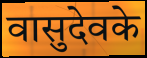
वासुदेवके